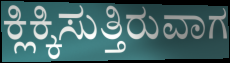
ಕ್ಲಿಕ್ಕಿಸುತ್ತಿರುವಾಗ